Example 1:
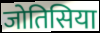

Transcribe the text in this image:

जोतिसिया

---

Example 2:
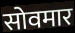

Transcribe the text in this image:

सोवमार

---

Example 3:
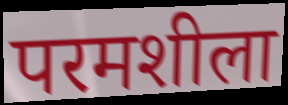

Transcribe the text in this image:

परमशीला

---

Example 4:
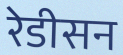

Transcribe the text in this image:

रेडीसन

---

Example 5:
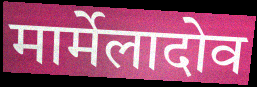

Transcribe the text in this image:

मार्मेलादोव